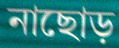
নাছোড়